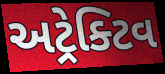
અટ્રેક્ટિવ